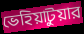
ভেহিয়াটুয়ার